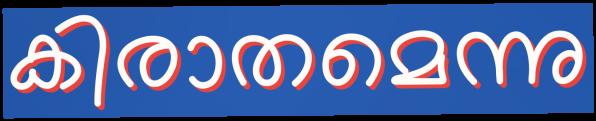
കിരാതമെന്നു